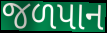
જળપાન